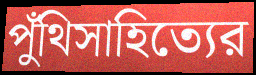
পুঁথিসাহিত্যের